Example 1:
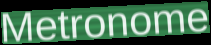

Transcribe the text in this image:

Metronome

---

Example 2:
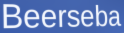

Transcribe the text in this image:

Beerseba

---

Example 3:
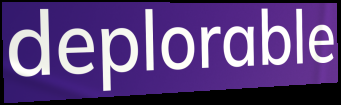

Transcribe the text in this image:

deplorable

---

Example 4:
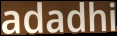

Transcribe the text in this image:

adadhi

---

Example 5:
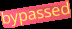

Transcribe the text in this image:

bypassed